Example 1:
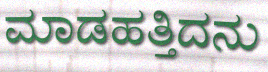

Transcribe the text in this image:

ಮಾಡಹತ್ತಿದನು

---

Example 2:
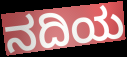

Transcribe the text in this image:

ನದಿಯ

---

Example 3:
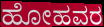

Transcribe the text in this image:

ಹೋಹವರ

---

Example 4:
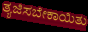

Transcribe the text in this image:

ತ್ಯಜಿಸಬೇಕಾಯಿತು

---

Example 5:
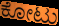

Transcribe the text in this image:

ಕೋಟು